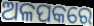
ଅଳପକରେ